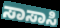
ಸಾಸಾಸಿ